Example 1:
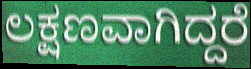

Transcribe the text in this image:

ಲಕ್ಷಣವಾಗಿದ್ದರೆ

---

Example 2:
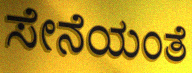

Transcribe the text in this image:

ಸೇನೆಯಂತೆ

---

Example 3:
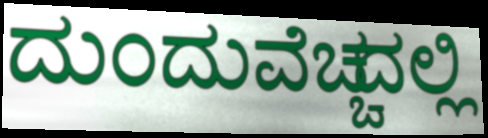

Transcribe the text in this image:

ದುಂದುವೆಚ್ಚದಲ್ಲಿ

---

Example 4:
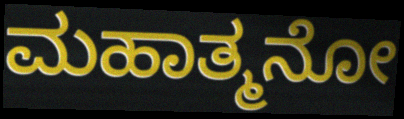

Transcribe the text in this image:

ಮಹಾತ್ಮನೋ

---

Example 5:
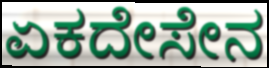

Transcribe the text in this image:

ಏಕದೇಸೇನ